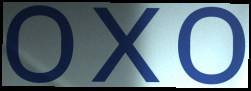
oxo